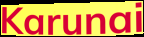
Karunai